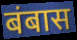
बंबास